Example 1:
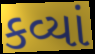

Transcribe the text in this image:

કવ્યાં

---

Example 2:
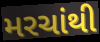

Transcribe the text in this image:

મરચાંથી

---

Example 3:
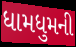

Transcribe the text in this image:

ધામધુમની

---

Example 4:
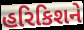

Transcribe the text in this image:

હરિકિશને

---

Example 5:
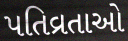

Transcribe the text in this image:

પતિવ્રતાઓ